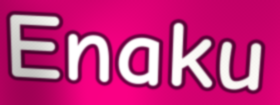
Enaku